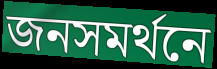
জনসমর্থনে